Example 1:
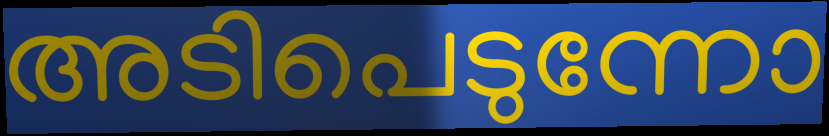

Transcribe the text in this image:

അടിപെടുന്നോ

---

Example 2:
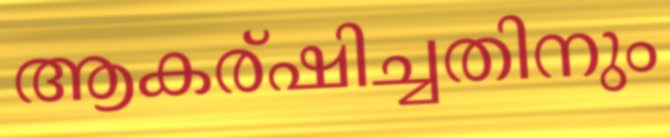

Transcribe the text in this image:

ആകര്ഷിച്ചതിനും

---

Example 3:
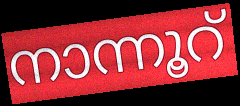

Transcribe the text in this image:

നാന്നൂറ്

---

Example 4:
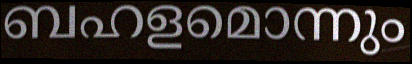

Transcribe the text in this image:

ബഹളമൊന്നും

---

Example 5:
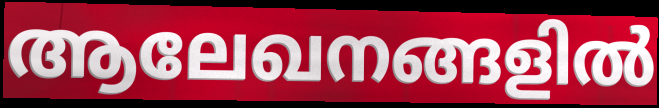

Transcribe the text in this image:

ആലേഖനങ്ങളിൽ